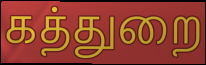
கத்துறை